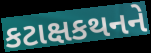
કટાક્ષકથનને